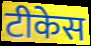
टीकेस